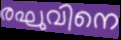
രഘുവിനെ